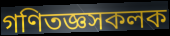
গণিতজ্ঞসকলক